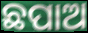
ଛପାଅ